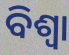
ବିଶ୍ବା